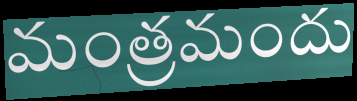
మంత్రమందు